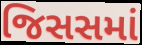
જિસસમાં